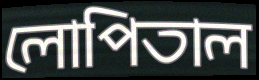
লোপিতাল